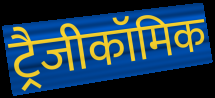
ट्रैजीकॉमिक